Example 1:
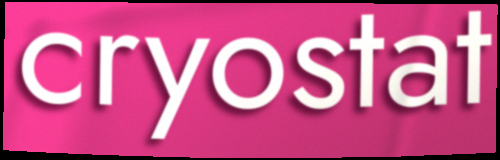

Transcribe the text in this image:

cryostat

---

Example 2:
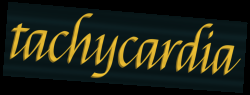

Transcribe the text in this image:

tachycardia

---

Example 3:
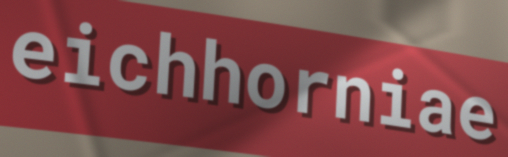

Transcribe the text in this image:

eichhorniae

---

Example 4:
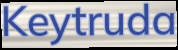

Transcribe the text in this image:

Keytruda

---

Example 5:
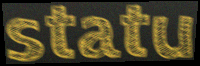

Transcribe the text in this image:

statu